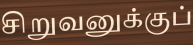
சிறுவனுக்குப்